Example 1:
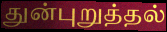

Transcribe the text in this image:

துன்புறுத்தல்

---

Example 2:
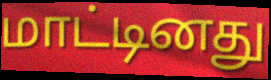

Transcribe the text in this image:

மாட்டினது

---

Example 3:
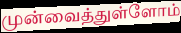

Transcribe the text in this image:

முன்வைத்துள்ளோம்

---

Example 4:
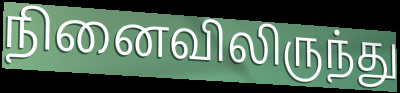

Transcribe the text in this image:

நினைவிலிருந்து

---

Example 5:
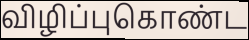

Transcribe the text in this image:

விழிப்புகொண்ட